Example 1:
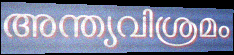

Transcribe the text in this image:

അന്ത്യവിശ്രമം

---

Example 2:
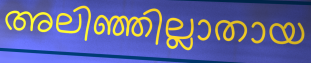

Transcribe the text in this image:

അലിഞ്ഞില്ലാതായ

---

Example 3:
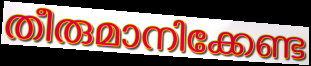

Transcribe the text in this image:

തീരുമാനിക്കേണ്ട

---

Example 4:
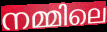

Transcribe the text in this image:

നമ്മിലെ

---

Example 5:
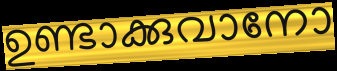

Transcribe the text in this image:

ഉണ്ടാക്കുവാനോ